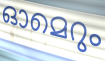
ഓമെറും